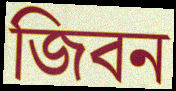
জিবন